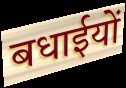
बधाईयों